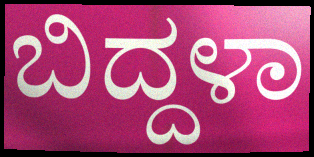
ಬಿದ್ದಳಾ